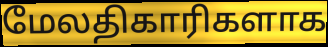
மேலதிகாரிகளாக